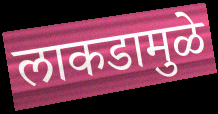
लाकडामुळे